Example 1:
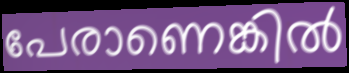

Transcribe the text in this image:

പേരാണെങ്കിൽ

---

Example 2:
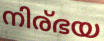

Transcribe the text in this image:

നിര്ഭയ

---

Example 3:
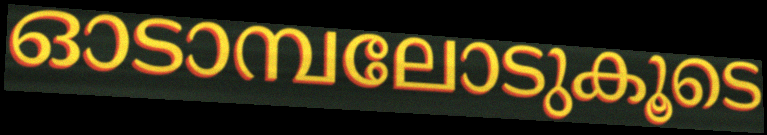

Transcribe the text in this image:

ഓടാമ്പലോടുകൂടെ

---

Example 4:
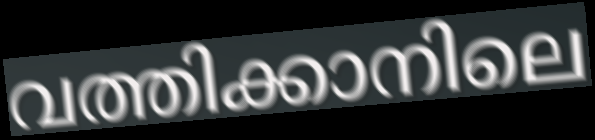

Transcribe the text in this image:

വത്തിക്കാനിലെ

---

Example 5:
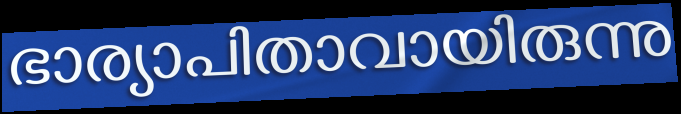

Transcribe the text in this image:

ഭാര്യാപിതാവായിരുന്നു